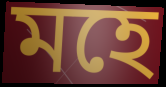
মহে